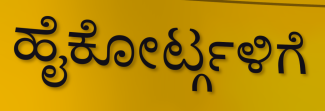
ಹೈಕೋರ್ಟ್ಗಳಿಗೆ